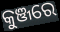
କୁଞ୍ଜରେ